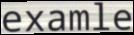
examle